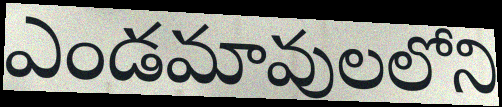
ఎండమావులలోని